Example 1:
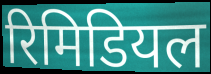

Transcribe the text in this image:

रिमिडियल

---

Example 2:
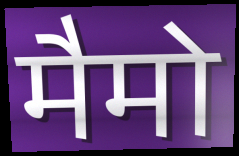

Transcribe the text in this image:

मैमो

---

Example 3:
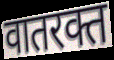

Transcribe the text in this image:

वातरक्त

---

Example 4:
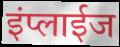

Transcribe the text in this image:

इंप्लाईज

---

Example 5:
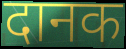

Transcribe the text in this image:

दानक